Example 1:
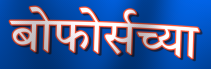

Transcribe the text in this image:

बोफोर्सच्या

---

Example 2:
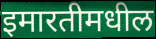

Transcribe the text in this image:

इमारतीमधील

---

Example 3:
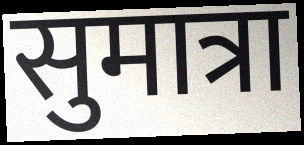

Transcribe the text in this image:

सुमात्रा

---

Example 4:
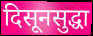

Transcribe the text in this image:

दिसूनसुद्धा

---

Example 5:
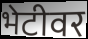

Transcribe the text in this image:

भेटीवर